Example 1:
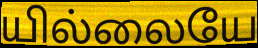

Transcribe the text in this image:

யில்லையே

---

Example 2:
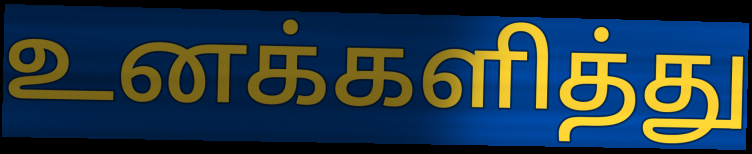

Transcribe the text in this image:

உனக்களித்து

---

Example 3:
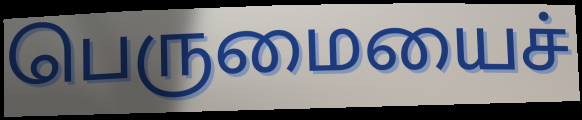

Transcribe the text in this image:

பெருமையைச்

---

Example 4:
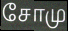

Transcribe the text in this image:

சோமு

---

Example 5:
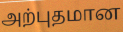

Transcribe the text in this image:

அற்புதமான